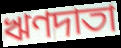
ঋণদাতা